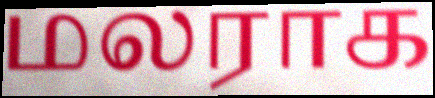
மலராக